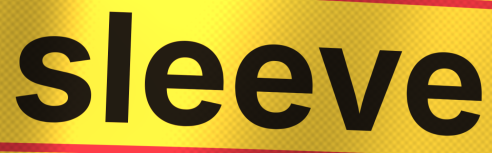
sleeve